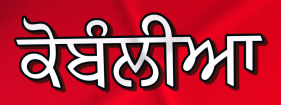
ਕੋਬੰਲੀਆ